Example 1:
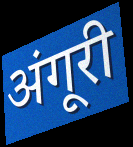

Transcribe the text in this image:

अंगूरी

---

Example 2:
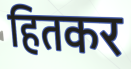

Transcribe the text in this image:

हितकर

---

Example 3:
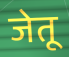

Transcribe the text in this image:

जेतू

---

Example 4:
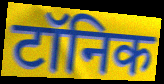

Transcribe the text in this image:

टॉनिक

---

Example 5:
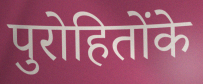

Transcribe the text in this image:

पुरोहितोंके